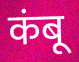
कंबू